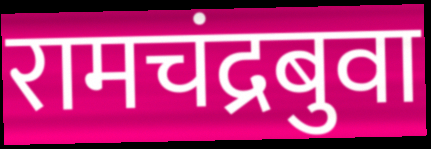
रामचंद्रबुवा